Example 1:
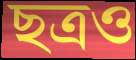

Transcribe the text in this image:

ছত্রও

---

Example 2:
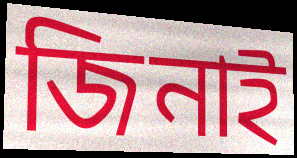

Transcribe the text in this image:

জিনাই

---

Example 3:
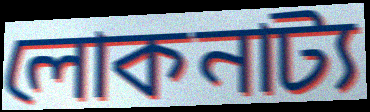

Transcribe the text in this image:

লোকনাট্য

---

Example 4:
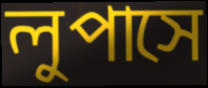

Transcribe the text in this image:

লুপাসে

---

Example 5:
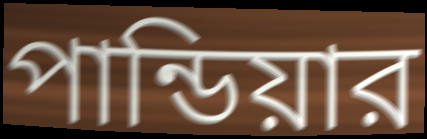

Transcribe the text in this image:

পান্ডিয়ার